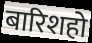
बारिशहो